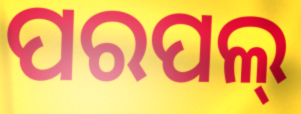
ପରପଲ୍